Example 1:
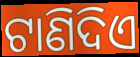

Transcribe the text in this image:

ଟାଣିଦିଏ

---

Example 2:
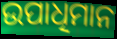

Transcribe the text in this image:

ଉପାଧିମାନ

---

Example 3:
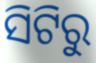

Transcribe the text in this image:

ସିଟିରୁ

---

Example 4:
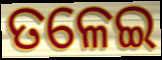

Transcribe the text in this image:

ତଳେଇ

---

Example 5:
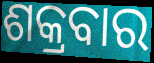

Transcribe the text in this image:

ଶକ୍ରବାର